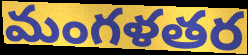
మంగళతర